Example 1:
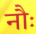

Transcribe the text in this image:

नौः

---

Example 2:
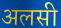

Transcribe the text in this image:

अलसी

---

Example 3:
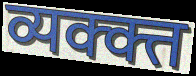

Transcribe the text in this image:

व्यक्क्त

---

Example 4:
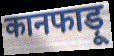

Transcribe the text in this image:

कानफाड़ू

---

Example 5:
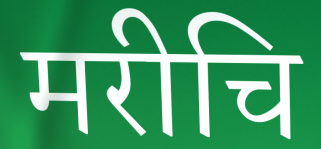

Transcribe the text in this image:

मरीचि